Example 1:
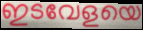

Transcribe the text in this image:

ഇടവേളയെ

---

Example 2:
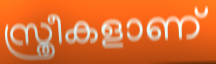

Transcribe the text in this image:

സ്ത്രീകളാണ്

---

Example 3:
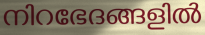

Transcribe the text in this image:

നിറഭേദങ്ങളിൽ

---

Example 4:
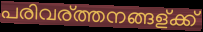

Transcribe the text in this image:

പരിവര്ത്തനങ്ങള്ക്ക്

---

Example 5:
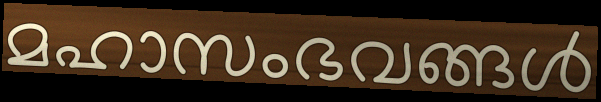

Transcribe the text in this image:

മഹാസംഭവങ്ങൾ